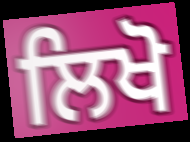
ਲਿਖੋ